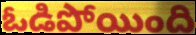
ఓడిపోయింది